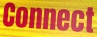
Connect